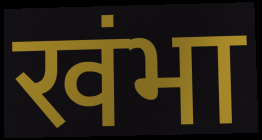
खंभा